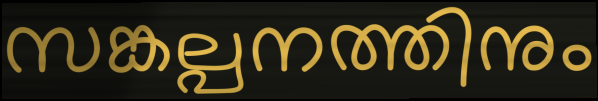
സങ്കല്പനത്തിനും